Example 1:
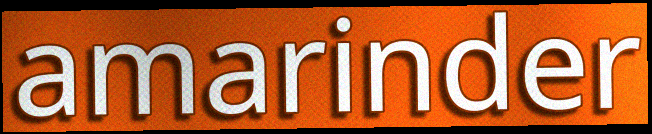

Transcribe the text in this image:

amarinder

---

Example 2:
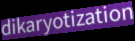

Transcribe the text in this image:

dikaryotization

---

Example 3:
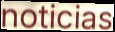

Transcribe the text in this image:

noticias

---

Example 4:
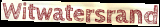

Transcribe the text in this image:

Witwatersrand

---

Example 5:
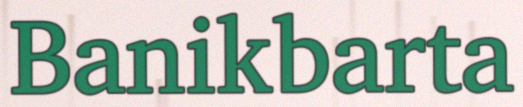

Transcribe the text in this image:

Banikbarta